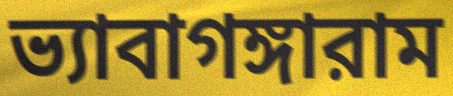
ভ্যাবাগঙ্গারাম